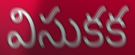
విసుకక